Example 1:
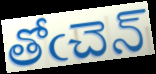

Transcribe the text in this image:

తోఁచెన్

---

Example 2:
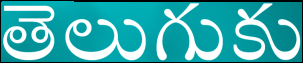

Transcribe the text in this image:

తెలుగుకు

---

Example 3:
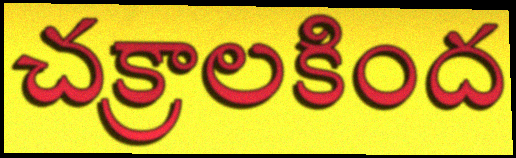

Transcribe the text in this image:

చక్రాలకింద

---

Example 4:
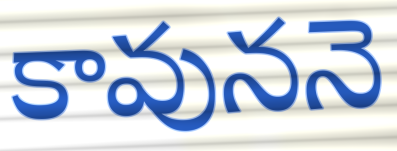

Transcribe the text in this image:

కావుననె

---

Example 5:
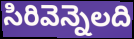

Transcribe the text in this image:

సిరివెన్నెలది